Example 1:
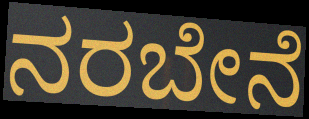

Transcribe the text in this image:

ನರಬೇನೆ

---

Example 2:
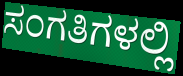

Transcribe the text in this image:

ಸಂಗತಿಗಳಲ್ಲಿ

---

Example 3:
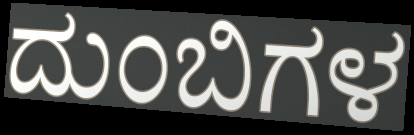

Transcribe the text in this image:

ದುಂಬಿಗಳ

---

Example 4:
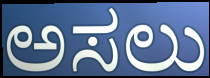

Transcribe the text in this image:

ಅಸಲು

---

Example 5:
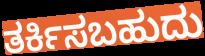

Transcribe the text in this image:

ತರ್ಕಿಸಬಹುದು